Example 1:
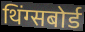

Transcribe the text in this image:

थिंग्सबोर्ड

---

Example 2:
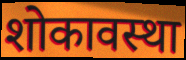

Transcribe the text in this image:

शोकावस्था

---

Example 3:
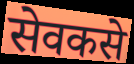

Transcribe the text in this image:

सेवकसे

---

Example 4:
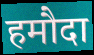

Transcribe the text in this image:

हमौदा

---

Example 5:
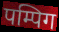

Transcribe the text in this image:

पम्पिग